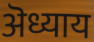
ऄध्याय